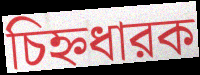
চিহ্নধারক